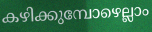
കഴിക്കുമ്പോഴെല്ലാം